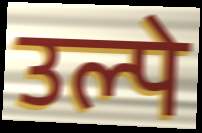
उल्पे